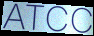
ATCC